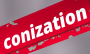
conization